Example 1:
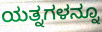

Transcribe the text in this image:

ಯತ್ನಗಳನ್ನೂ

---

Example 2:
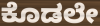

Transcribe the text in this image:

ಕೊಡಲೇ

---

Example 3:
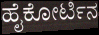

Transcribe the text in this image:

ಹೈಕೋರ್ಟಿನ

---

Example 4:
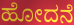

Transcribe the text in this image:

ಹೋದನೆ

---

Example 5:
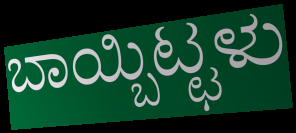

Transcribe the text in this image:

ಬಾಯ್ಬಿಟ್ಟಳು